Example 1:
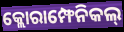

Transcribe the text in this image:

କ୍ଲୋରାମ୍ଫେନିକଲ୍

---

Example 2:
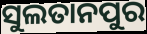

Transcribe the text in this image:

ସୁଲତାନପୁର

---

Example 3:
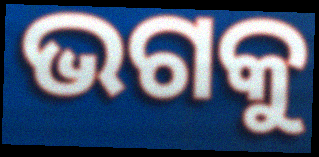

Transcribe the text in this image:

ଭଗକୁ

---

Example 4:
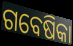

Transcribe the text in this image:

ଗବେଷିକା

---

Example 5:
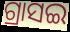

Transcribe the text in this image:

ଗ୍ରାସଇ